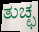
ತುಚ್ಛ